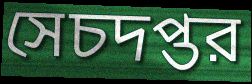
সেচদপ্তর